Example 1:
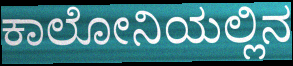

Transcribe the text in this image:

ಕಾಲೋನಿಯಲ್ಲಿನ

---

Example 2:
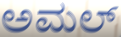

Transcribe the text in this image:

ಅಮಲ್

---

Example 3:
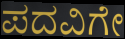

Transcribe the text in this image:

ಪದವಿಗೇ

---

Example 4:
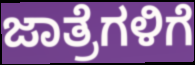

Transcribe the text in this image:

ಜಾತ್ರೆಗಳಿಗೆ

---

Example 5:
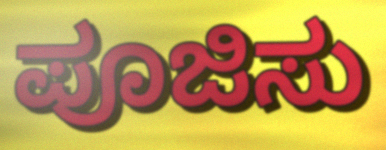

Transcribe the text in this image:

ಪೂಜಿಸು